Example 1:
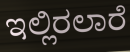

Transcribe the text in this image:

ಇಲ್ಲಿರಲಾರೆ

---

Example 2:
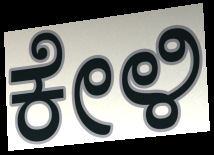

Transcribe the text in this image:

ಕೇಳಿ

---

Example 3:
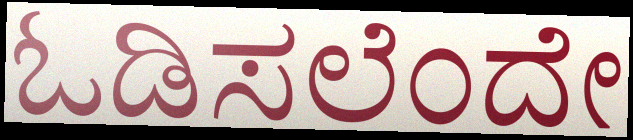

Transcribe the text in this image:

ಓಡಿಸಲೆಂದೇ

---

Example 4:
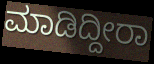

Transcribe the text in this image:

ಮಾಡಿದ್ದೀರಾ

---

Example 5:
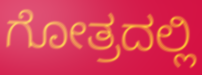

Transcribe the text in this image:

ಗೋತ್ರದಲ್ಲಿ